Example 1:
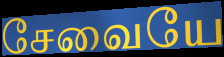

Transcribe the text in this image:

சேவையே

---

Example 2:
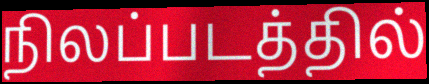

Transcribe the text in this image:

நிலப்படத்தில்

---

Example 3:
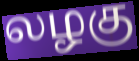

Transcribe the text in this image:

லழகு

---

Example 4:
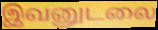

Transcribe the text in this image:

இவனுடலை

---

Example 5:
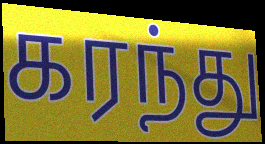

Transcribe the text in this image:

கரந்து